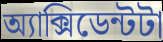
অ্যাক্সিডেন্টটা